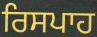
ਰਿਸਪਾਹ